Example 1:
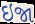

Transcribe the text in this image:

ઇજા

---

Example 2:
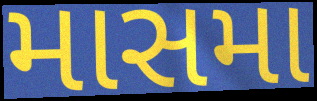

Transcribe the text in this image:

માસમા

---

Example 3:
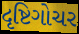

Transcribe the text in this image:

દૃષ્ટિગોચર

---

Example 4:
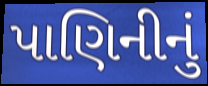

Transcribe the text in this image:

પાણિનીનું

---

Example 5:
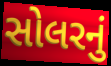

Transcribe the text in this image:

સોલરનું